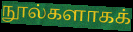
நூல்களாகக்